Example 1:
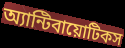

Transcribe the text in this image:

অ্যান্টিবায়োটিকস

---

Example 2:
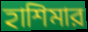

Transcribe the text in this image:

হাশিমার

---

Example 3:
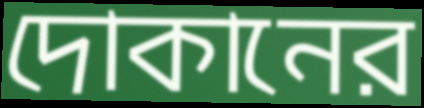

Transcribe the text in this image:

দোকানের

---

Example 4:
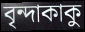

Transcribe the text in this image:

বৃন্দাকাকু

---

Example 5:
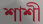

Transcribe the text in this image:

শাশী